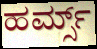
ಹರ್ಮ್ಸ್